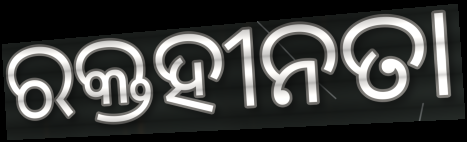
ରକ୍ତହୀନତା